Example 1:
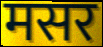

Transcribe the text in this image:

मसर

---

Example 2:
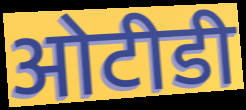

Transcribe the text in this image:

ओटीडी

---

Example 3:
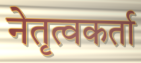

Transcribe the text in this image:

नेतृत्‍वकर्ता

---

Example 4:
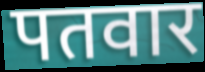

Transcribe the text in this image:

पतवार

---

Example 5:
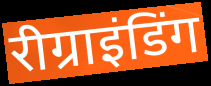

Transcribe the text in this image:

रीग्राइंडिंग